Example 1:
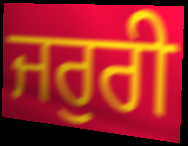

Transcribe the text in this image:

ਜਰੁਰੀ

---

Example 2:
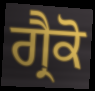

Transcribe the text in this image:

ਗ੍ਰੈਕੋ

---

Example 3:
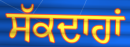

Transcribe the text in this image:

ਸੱਕਦਾਹਾਂ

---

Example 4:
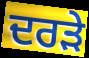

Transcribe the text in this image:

ਦਰੜੇ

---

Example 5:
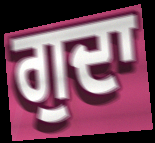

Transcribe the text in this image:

ਗੁਦਾ